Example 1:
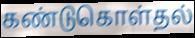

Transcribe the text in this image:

கண்டுகொள்தல்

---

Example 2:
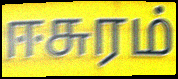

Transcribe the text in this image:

ஈசுரம்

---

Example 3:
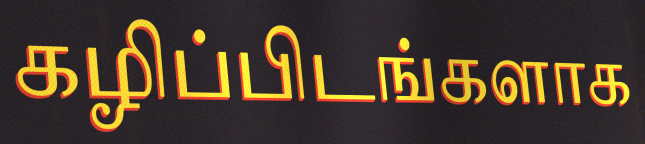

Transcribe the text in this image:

கழிப்பிடங்களாக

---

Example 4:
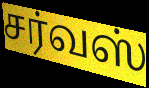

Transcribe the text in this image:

சர்வஸ்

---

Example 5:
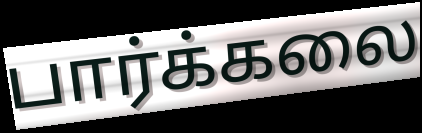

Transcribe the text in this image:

பார்க்கலை